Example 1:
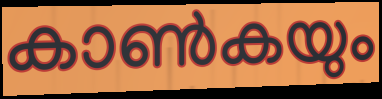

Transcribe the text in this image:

കാൺകയും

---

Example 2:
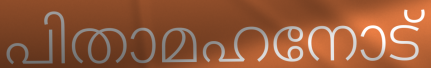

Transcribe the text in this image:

പിതാമഹനോട്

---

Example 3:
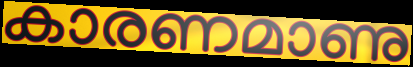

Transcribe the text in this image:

കാരണമാണു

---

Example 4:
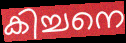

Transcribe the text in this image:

കിച്ചനെ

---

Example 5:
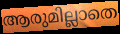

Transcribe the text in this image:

ആരുമില്ലാതെ